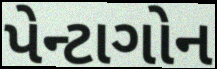
પેન્ટાગોન